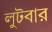
লুটবার